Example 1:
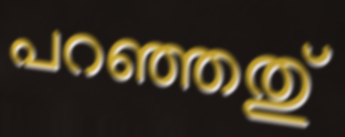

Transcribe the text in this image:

പറഞ്ഞതു്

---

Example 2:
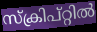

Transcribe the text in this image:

സ്ക്രിപ്റ്റിൽ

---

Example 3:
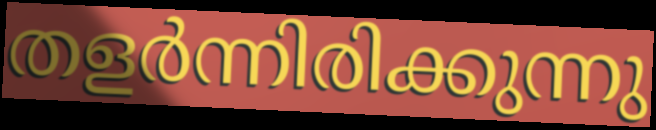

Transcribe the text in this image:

തളർന്നിരിക്കുന്നു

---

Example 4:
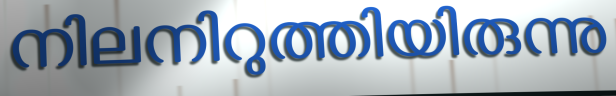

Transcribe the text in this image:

നിലനിറുത്തിയിരുന്നു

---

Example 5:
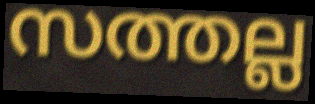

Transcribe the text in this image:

സത്തല്ല